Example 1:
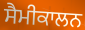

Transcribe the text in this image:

ਸੈਮੀਕਾਲਨ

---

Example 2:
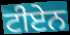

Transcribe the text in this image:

ਟੀਏਨ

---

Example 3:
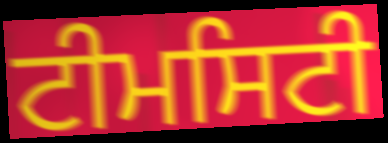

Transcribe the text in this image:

ਟੀਮਸਿਟੀ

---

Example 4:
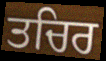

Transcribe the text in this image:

ਤਚਿਰ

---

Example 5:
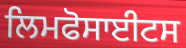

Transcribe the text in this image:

ਲਿਮਫੋਸਾਈਟਸ